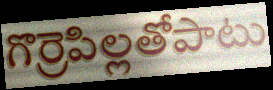
గొర్రెపిల్లతోపాటు